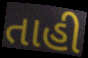
તાહી